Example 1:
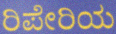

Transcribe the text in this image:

ರಿಪೇರಿಯ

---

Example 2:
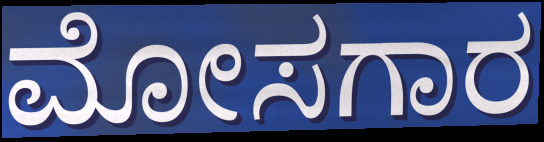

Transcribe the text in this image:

ಮೋಸಗಾರ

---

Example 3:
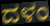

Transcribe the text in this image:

ದಳಂ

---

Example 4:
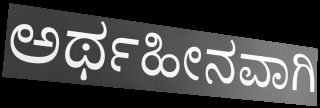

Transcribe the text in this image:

ಅರ್ಥಹೀನವಾಗಿ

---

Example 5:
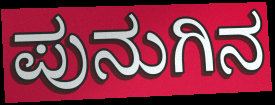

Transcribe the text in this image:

ಪುನುಗಿನ